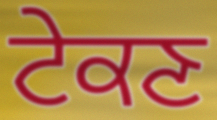
ਟੇਕਣ